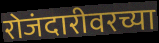
रोजंदारीवरच्या